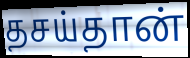
தசய்தான்